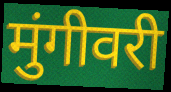
मुंगीवरी